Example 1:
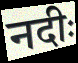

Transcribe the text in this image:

नदीः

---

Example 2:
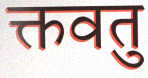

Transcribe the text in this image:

क्तवतु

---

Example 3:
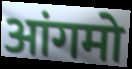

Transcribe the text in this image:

आंगमो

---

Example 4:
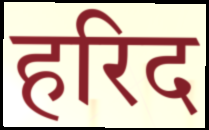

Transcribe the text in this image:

हरिद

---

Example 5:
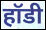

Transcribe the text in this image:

हॉडी